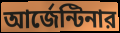
আর্জেন্টিনার